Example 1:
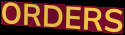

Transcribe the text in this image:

ORDERS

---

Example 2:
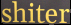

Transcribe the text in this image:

shiter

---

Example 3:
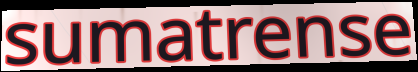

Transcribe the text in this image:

sumatrense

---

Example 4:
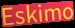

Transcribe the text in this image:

Eskimo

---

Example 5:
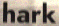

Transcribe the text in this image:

hark